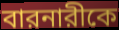
বারনারীকে